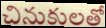
చినుకులతో